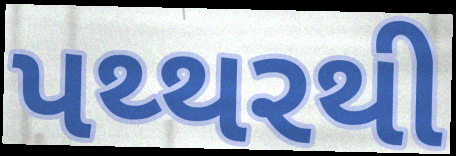
પથ્થરથી